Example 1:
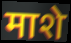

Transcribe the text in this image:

माशे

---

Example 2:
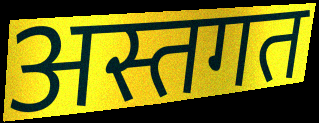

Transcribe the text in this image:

अस्तगत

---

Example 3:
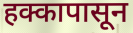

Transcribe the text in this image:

हक्कापासून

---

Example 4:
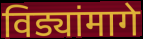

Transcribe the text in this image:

विड्यांमागे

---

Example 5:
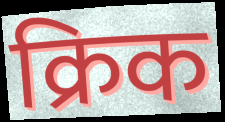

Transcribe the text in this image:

क्रिक